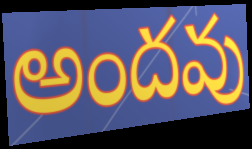
అందవు